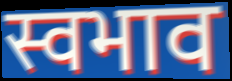
स्वभाव